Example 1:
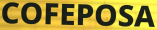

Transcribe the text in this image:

COFEPOSA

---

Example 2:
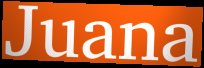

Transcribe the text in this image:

Juana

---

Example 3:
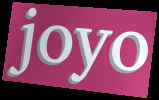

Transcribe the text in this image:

joyo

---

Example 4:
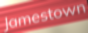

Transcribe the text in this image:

Jamestown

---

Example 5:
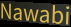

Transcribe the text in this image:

Nawabi